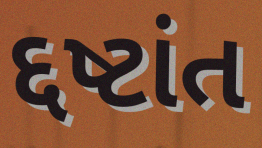
દ્દષ્ટાંત